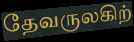
தேவருலகிற்